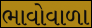
ભાવોવાળા